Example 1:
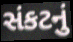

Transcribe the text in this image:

સંકટનું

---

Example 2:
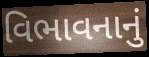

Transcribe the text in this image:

વિભાવનાનું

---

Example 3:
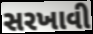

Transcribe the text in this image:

સરખાવી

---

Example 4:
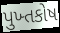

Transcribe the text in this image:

પુખ્તકોષ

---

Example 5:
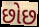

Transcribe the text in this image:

છોછ